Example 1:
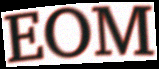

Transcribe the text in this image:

EOM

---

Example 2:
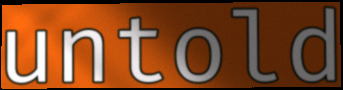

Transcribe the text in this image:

untold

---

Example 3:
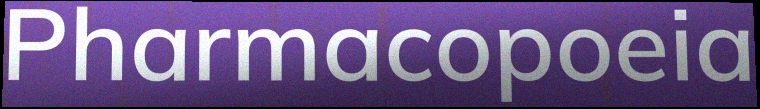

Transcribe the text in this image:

Pharmacopoeia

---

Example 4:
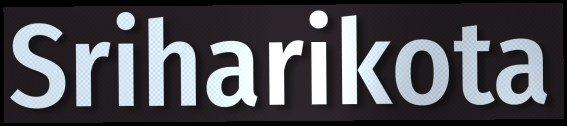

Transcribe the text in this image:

Sriharikota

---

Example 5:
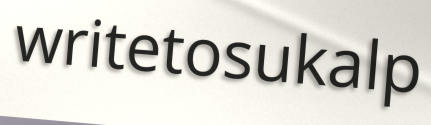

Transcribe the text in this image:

writetosukalp